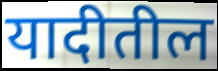
यादीतील